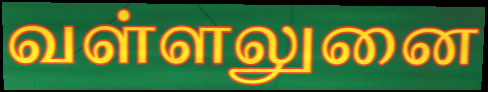
வள்ளலுனை